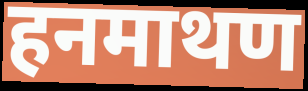
हनमाथण